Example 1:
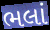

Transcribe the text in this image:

ભલાં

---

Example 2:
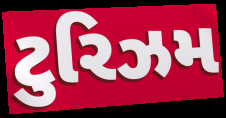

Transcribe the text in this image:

ટુરિઝમ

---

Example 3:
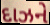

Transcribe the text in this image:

દાઝને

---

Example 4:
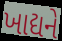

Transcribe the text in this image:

ખાદ્યને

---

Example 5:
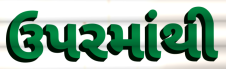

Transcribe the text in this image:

ઉપરમાંથી